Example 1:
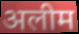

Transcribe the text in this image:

अलीम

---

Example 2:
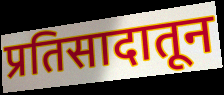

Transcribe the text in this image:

प्रतिसादातून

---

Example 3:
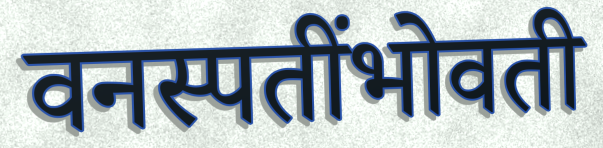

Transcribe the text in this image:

वनस्पतींभोवती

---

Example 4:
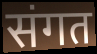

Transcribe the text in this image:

संगत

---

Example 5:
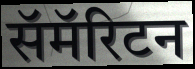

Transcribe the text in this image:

सॅमॅरिटन